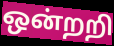
ஒன்றறி